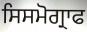
ਸਿਸਮੋਗ੍ਰਾਫ